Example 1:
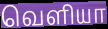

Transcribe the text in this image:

வெளியா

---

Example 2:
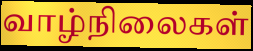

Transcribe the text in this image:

வாழ்நிலைகள்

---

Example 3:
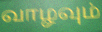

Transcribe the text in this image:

வாழவும்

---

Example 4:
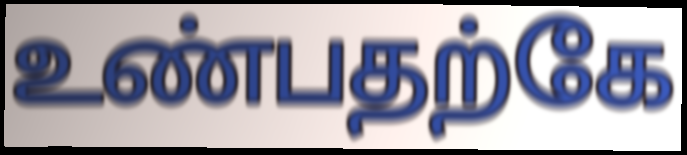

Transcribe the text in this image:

உண்பதற்கே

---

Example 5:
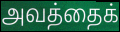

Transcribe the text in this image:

அவத்தைக்